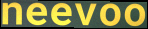
neevoo